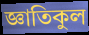
জ্ঞাতিকুল